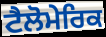
ਟੈਲੋਮੇਰਿਕ